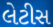
લેટીસ